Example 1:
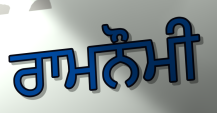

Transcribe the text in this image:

ਰਾਮਨੌਮੀ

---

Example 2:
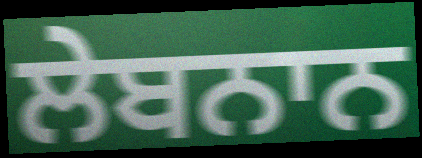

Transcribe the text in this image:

ਲੇਬਨਾਨ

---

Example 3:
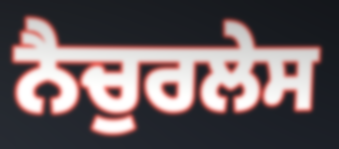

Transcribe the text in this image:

ਨੈਚੁਰਲੇਸ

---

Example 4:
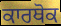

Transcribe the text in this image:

ਕਾਰਥੋਕ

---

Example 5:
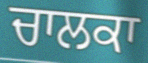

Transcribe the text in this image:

ਚਾਲਕਾ